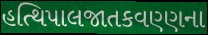
હત્થિપાલજાતકવણ્ણના